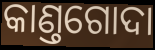
କାଣ୍ତଗୋଦା